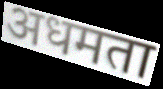
अधमता